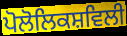
ਪੋਲੋਲਿਕਸ਼ਵਿਲੀ